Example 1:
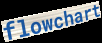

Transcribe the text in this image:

flowchart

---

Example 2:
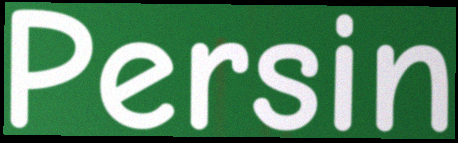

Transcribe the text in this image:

Persin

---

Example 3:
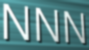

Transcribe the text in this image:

NNN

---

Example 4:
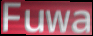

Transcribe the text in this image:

Fuwa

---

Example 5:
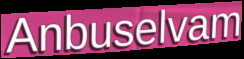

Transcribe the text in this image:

Anbuselvam